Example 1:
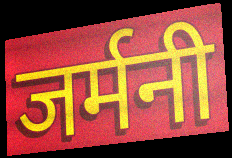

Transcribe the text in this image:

जर्मनी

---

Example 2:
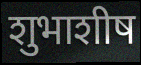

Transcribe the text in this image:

शुभाशीष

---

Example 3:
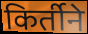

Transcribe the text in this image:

किर्तीने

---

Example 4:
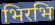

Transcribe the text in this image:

भिरभि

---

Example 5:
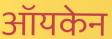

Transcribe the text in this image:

ऑयकेन